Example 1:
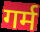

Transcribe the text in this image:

गर्म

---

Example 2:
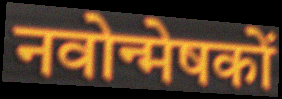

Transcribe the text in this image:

नवोन्मेषकों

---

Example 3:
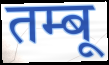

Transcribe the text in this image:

तम्बू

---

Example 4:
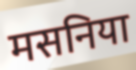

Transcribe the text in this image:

मसनिया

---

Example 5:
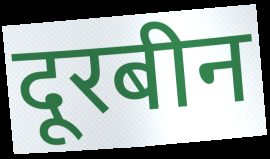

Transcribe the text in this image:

दूरबीन